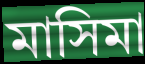
মাসিমা